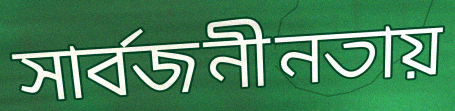
সার্বজনীনতায়